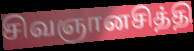
சிவஞானசித்தி